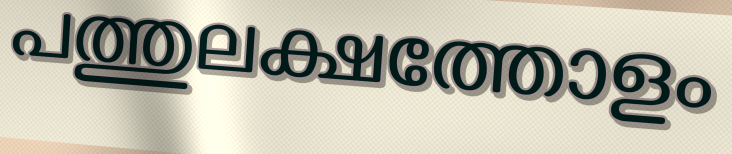
പത്തുലക്ഷത്തോളം